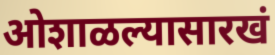
ओशाळल्यासारखं